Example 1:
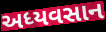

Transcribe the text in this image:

અધ્યવસાન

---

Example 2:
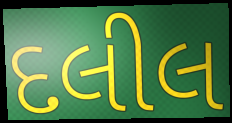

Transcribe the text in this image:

દલીલ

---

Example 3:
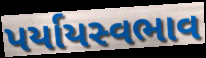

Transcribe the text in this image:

પર્યાયસ્વભાવ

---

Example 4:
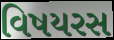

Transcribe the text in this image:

વિષયરસ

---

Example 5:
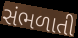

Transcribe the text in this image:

સંભળાતી